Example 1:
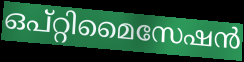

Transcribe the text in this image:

ഒപ്റ്റിമൈസേഷൻ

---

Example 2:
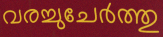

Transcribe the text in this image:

വരച്ചുചേർത്തു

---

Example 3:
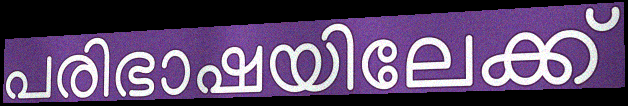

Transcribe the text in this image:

പരിഭാഷയിലേക്ക്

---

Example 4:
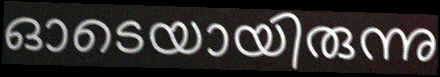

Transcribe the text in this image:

ഓടെയായിരുന്നു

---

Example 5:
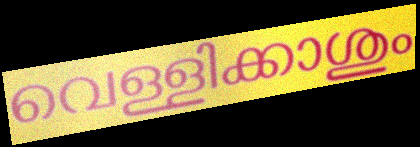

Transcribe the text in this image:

വെള്ളിക്കാശും